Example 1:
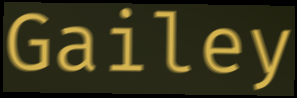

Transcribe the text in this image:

Gailey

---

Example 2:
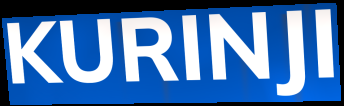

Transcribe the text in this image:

KURINJI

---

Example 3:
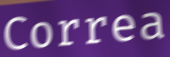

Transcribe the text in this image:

Correa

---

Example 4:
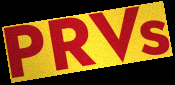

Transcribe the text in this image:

PRVs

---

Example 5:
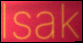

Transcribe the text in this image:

Isak